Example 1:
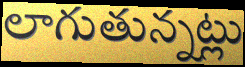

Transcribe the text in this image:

లాగుతున్నట్లు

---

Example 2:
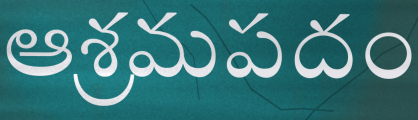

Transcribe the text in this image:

ఆశ్రమపదం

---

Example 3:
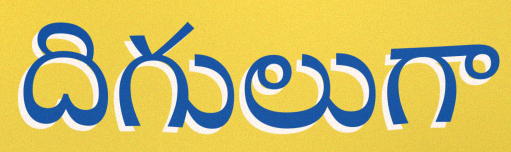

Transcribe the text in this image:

దిగులుగా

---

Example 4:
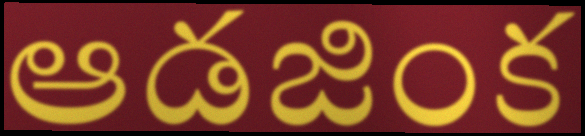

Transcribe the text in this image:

ఆడజింక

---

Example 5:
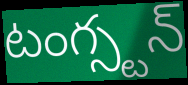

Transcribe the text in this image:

టంగ్స్టన్